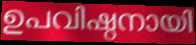
ഉപവിഷ്ഠനായി